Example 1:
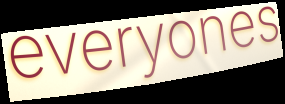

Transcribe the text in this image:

everyones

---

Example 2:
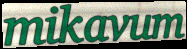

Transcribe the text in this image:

mikavum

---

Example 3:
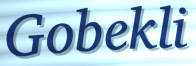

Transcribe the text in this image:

Gobekli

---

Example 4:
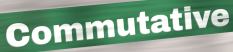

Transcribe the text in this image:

Commutative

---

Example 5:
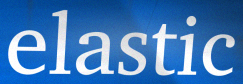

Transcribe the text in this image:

elastic